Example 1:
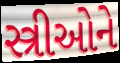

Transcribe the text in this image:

સ્ત્રીઓને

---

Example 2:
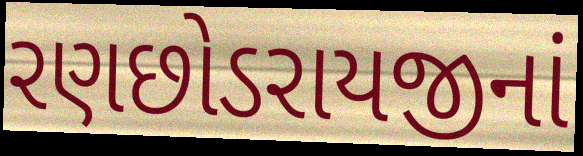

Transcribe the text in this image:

રણછોડરાયજીનાં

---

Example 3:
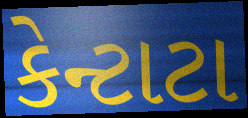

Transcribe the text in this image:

કેન્ટાટા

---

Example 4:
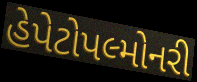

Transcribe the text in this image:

હેપેટોપલ્મોનરી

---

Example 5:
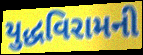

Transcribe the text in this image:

યુદ્ધવિરામની